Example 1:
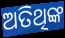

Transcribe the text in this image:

ଅତିଥିଙ୍କ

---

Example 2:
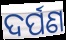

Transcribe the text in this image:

ଦର୍ପଣ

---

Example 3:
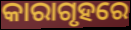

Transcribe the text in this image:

କାରାଗୃହରେ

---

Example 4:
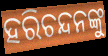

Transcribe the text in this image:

ହରିଚନ୍ଦନଙ୍କୁ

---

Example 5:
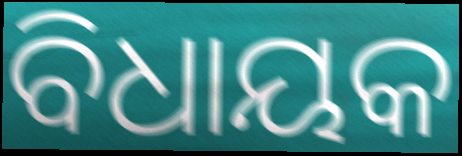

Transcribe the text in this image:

ବିଧାୟକ